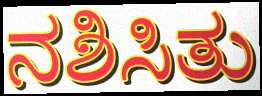
ನಶಿಸಿತು